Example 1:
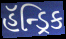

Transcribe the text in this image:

હૅન્ડ્રિક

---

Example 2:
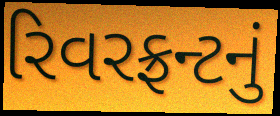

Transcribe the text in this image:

રિવરફ્રન્ટનું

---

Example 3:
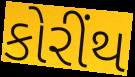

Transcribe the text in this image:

કોરીંથ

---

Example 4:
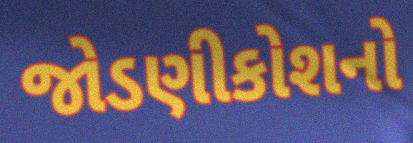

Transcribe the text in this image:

જોડણીકોશનો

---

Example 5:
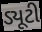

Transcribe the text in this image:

ડ્યૂટી